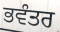
ਭਵੰਤਰ